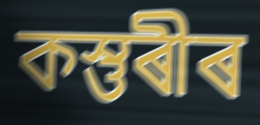
কস্তুৰীৰ